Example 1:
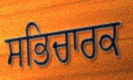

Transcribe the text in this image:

ਸਭਿਚਾਰਕ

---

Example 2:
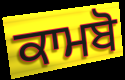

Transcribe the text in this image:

ਕਾਮਬੋ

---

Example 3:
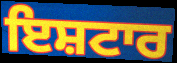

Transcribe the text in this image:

ਇਸ਼ਟਾਰ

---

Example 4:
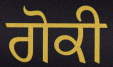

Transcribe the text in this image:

ਗੋਕੀ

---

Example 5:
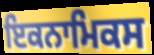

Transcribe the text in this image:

ਇਕਨਾਮਿਕਸ